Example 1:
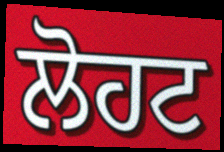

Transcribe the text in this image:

ਲੋਹਟ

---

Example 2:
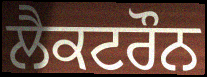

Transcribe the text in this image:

ਲੈਕਟਰੌਨ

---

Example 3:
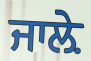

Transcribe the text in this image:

ਜਾਲ਼ੇ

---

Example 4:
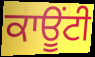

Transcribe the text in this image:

ਕਾਊਂਟੀ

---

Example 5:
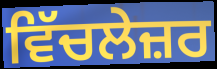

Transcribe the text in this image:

ਵਿੱਚਲੇਜ਼ਰ